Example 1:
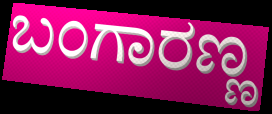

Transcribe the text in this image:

ಬಂಗಾರಣ್ಣ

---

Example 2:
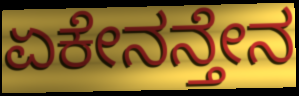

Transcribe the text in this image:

ಏಕೇನನ್ತೇನ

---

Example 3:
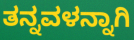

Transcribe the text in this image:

ತನ್ನವಳನ್ನಾಗಿ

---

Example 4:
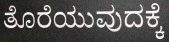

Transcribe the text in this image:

ತೊರೆಯುವುದಕ್ಕೆ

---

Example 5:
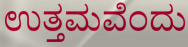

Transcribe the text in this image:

ಉತ್ತಮವೆಂದು